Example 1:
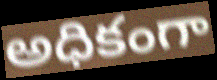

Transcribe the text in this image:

అధికంగా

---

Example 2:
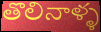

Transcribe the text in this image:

తొలినాళ్ళ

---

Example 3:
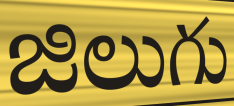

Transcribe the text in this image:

జిలుగు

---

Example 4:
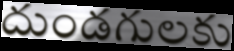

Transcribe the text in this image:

దుండగులకు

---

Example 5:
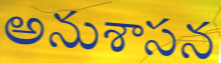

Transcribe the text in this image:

అనుశాసన